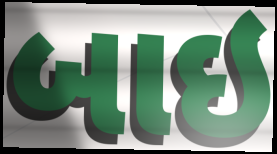
બાઇ